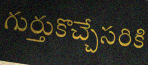
గుర్తుకొచ్చేసరికి